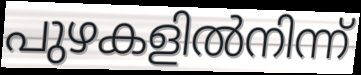
പുഴകളിൽനിന്ന്